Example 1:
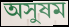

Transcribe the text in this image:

অসুষম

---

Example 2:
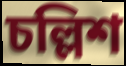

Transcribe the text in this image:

চল্লিশ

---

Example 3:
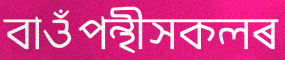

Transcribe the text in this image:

বাওঁপন্থীসকলৰ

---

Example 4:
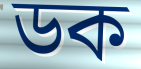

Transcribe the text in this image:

ডক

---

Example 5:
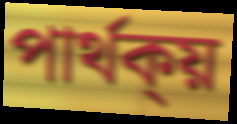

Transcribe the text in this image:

পাৰ্থক্য়